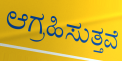
ಆಗ್ರಹಿಸುತ್ತವೆ